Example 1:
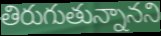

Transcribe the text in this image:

తిరుగుతున్నానని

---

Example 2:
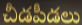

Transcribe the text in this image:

చీడపీడలు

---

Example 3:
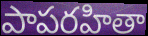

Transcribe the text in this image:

పాపరహితా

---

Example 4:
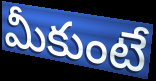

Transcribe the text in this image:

మీకుంటే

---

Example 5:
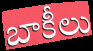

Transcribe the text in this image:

బాకీలు